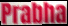
Prabha